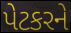
પેટકરને